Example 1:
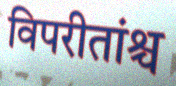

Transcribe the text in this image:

विपरीतांश्च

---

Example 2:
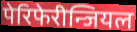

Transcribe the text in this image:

पेरिफेरीन्जियल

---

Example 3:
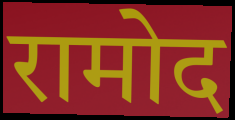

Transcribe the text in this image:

रामोद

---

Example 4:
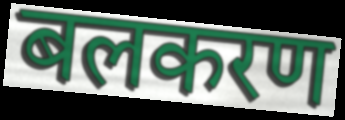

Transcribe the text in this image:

बलकरण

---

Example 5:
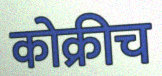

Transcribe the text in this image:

कोक्रीच